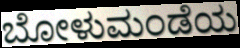
ಬೋಳುಮಂಡೆಯ